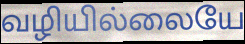
வழியில்லையே